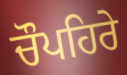
ਚੌਪਹਿਰੇ